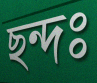
ছন্দঃ